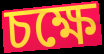
চক্ষে